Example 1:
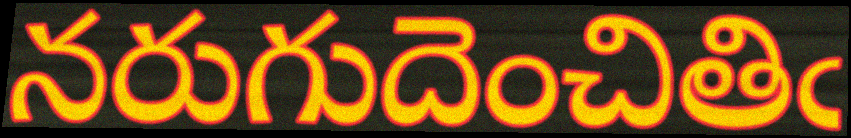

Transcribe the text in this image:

నరుగుదెంచితిఁ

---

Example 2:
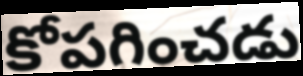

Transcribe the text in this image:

కోపగించడు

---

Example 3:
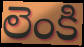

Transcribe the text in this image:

లెంకి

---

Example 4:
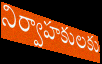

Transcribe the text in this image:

నిర్వాహకులకు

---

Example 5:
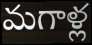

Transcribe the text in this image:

మగాళ్ల